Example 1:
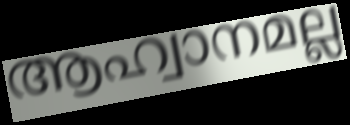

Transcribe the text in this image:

ആഹ്വാനമല്ല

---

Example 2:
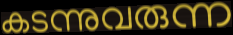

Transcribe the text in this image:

കടന്നുവരുന്ന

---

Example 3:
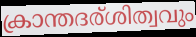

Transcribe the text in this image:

ക്രാന്തദര്ശിത്വവും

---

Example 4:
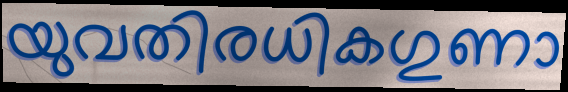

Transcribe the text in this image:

യുവതിരധികഗുണാ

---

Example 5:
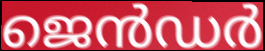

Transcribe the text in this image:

ജെൻഡർ